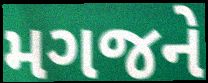
મગજને